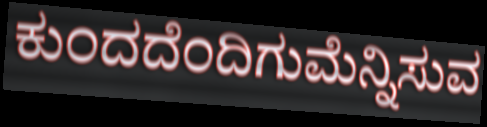
ಕುಂದದೆಂದಿಗುಮೆನ್ನಿಸುವ